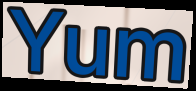
Yum